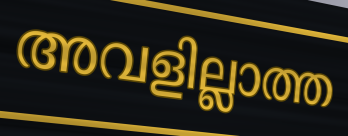
അവളില്ലാത്ത